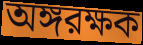
অঙ্গরক্ষক